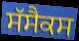
ਸੱਸੈਕਸ